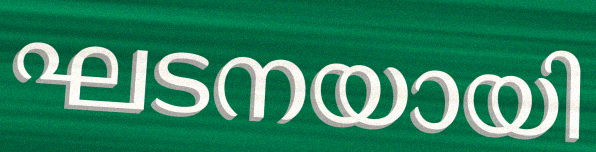
ഘടനയായി